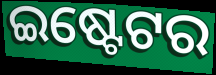
ଇଷ୍ଟେଟର